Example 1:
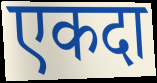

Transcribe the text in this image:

एकदा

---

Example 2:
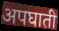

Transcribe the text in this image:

अपघाती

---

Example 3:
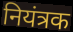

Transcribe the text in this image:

नियंत्रक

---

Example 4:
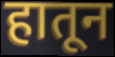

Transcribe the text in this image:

हातून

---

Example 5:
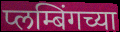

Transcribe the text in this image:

प्लम्बिंगच्या